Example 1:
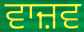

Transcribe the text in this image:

ਵਾਜ਼ਵ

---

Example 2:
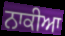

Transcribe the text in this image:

ਨਾਕੀਆ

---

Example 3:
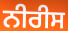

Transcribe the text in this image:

ਨੀਰੀਸ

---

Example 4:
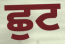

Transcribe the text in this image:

ਛੁਟ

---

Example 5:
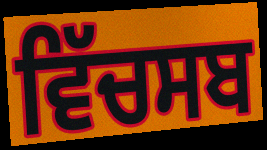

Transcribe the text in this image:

ਵਿੱਚਸਬ